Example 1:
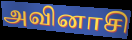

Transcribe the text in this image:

அவினாசி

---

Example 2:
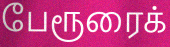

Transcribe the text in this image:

பேரூரைக்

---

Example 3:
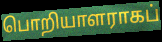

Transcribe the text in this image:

பொறியாளராகப்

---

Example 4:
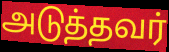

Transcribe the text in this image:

அடுத்தவர்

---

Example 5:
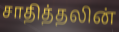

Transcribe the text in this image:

சாதித்தலின்